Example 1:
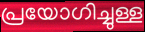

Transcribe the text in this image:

പ്രയോഗിച്ചുള്ള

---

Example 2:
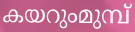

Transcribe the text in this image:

കയറുംമുമ്പ്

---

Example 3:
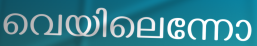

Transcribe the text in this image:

വെയിലെന്നോ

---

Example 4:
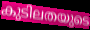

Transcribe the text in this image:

കുടിലതയുടെ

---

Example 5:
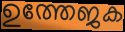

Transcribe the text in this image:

ഉത്തേജക